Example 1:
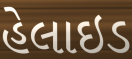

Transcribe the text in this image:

હેલાઇડ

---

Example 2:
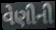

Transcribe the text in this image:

વેણીની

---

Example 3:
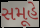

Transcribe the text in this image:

સમૂહે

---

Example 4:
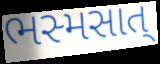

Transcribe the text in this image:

ભસ્મસાત્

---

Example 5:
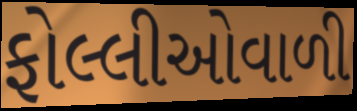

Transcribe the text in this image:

ફોલ્લીઓવાળી